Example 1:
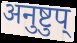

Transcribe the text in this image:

अनुष्टुप्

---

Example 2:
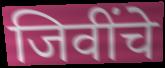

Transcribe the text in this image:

जिवींचे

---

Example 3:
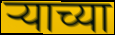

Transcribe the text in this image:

ऱ्याच्या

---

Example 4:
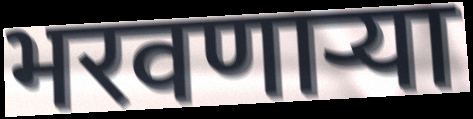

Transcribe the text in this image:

भरवणाऱ्या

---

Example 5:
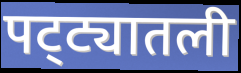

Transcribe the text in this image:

पट्ट्यातली